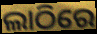
ଲାଠିରେ